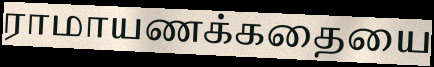
ராமாயணக்கதையை